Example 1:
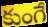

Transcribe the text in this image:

కుంగే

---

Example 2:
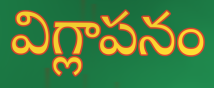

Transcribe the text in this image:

విగ్లాపనం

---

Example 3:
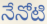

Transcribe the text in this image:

నేనోటి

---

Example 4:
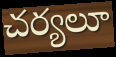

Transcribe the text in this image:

చర్యలూ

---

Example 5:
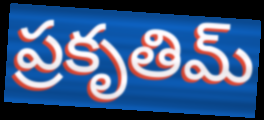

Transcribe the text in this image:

ప్రకృతిమ్